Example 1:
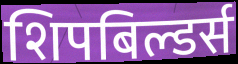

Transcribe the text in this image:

शिपबिल्डर्स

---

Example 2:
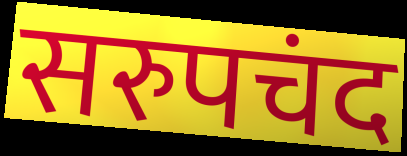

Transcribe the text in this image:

सरुपचंद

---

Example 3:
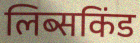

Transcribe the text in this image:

लिब्सकिंड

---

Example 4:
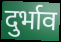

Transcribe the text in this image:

दुर्भाव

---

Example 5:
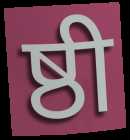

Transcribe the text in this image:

ष्ठी